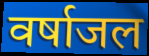
वर्षाजल